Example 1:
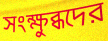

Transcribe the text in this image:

সংক্ষুব্ধদের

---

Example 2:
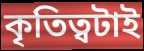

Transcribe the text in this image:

কৃতিত্বটাই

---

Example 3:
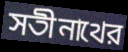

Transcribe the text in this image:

সতীনাথের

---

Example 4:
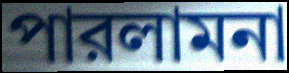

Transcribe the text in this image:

পারলামনা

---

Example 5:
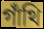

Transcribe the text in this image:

গাঁথি